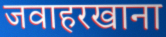
जवाहरखाना